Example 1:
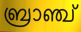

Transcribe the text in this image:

ബ്രാഞ്ച്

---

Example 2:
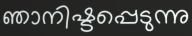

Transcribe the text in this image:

ഞാനിഷ്ടപ്പെടുന്നു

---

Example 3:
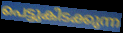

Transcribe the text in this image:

പെട്ടുകിടക്കുന്ന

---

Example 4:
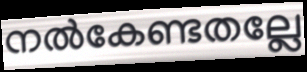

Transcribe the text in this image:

നൽകേണ്ടതല്ലേ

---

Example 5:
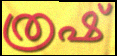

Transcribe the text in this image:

ത്രഷ്